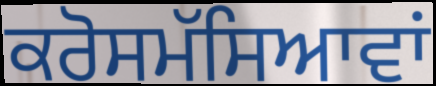
ਕਰੋਸਮੱਸਿਆਵਾਂ